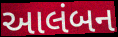
આલંબન